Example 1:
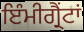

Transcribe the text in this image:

ਇੰਮੀਗ੍ਰੈਂਟਾਂ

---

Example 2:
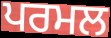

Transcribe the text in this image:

ਪਰਮਲ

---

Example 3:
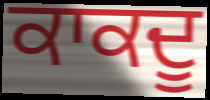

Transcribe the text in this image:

ਕਾਕਦੂ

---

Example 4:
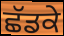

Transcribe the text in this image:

ਛੱਡਕੇ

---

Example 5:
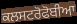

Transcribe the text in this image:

ਕਲਸਟਰੋਫੋਬੀਆ